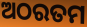
ଅଠରତମ